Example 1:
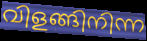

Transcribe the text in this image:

വിളങ്ങിനിന്ന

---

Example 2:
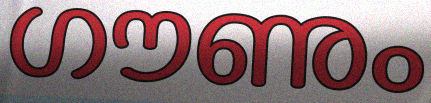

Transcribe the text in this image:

ഗൗണും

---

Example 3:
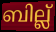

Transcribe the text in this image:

ബില്ല്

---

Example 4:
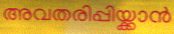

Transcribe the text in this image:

അവതരിപ്പിയ്ക്കാൻ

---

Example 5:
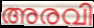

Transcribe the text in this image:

അരവി